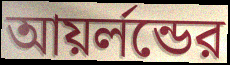
আয়র্লন্ডের